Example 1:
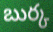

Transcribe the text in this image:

బుర్క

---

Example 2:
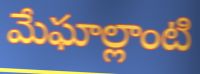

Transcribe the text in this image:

మేఘాల్లాంటి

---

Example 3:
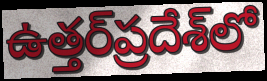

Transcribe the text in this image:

ఉత్తర్‌ప్రదేశ్‌లో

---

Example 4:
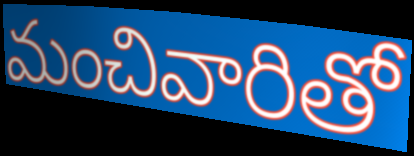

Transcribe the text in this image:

మంచివారితో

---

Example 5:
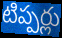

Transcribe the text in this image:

టిప్పర్లు